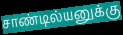
சாண்டில்யனுக்கு